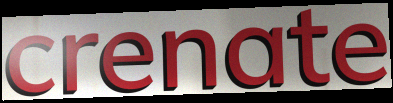
crenate